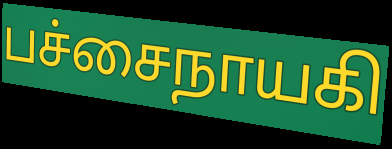
பச்சைநாயகி